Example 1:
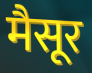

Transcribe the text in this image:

मैसूर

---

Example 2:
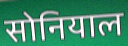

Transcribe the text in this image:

सोनियाल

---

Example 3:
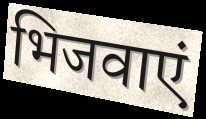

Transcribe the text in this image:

भिजवाएं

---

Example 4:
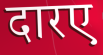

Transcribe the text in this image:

दारए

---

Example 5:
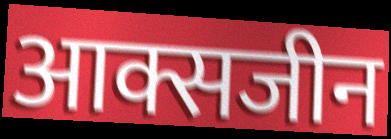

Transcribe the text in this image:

आक्सजीन